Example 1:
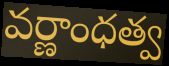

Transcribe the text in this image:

వర్ణాంధత్వ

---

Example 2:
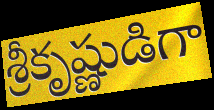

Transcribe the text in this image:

శ్రీకృష్ణుడిగా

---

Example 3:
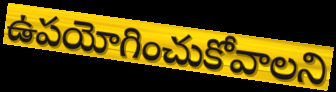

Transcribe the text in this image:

ఉపయోగించుకోవాలని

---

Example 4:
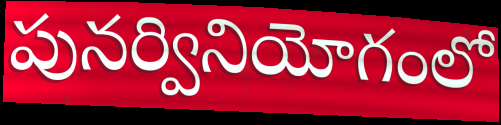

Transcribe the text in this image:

పునర్వినియోగంలో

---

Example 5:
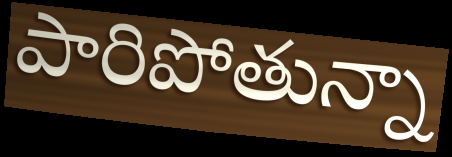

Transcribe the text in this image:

పారిపోతున్నా